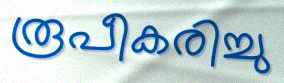
രൂപീകരിച്ചു